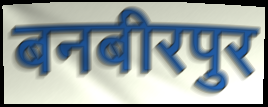
बनबीरपुर